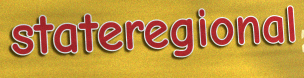
stateregional